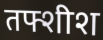
तफ्शीश